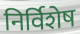
निर्विशेष